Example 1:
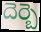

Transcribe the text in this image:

దెర్బె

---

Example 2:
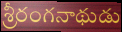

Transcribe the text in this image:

శ్రీరంగనాథుడు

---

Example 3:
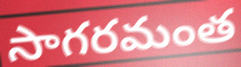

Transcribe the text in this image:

సాగరమంత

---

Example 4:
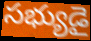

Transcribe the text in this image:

సభ్యుడై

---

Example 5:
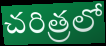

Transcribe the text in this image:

చరిత్రలో